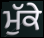
ਮੁੱਕੇ